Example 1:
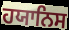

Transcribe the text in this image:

ਹਯਾਨਿਸ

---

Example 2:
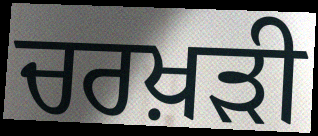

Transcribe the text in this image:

ਚਰਖ਼ੜੀ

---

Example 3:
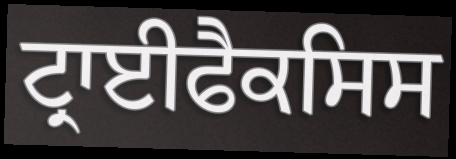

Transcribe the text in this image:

ਟ੍ਰਾਈਫੈਕਸਿਸ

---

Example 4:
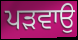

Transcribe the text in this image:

ਪੜਵਾਉ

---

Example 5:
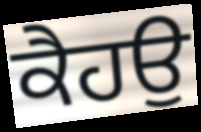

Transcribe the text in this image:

ਕੈਹਉ